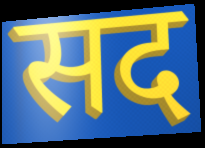
सद